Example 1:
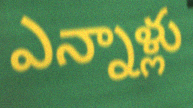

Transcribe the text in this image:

ఎన్నాళ్లు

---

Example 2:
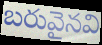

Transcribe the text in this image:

బరువైనవి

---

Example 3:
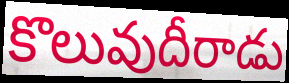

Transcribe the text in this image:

కొలువుదీరాడు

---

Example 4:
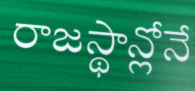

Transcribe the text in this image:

రాజస్థాన్లోనే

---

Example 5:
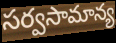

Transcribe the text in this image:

సర్వసామాన్య